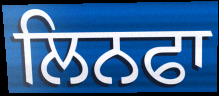
ਲਿਨਫਾ